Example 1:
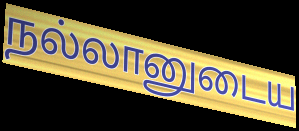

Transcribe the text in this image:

நல்லானுடைய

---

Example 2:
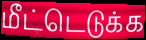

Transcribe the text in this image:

மீட்டெடுக்க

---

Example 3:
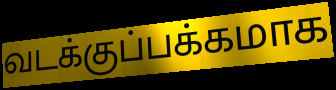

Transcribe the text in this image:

வடக்குப்பக்கமாக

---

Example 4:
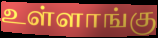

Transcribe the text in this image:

உள்ளாங்கு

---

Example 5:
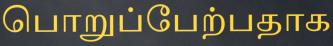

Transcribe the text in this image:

பொறுப்பேற்பதாக